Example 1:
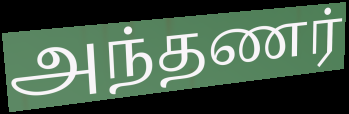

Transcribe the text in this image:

அந்தணர்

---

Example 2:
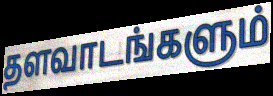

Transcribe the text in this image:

தளவாடங்களும்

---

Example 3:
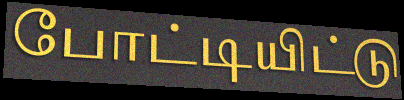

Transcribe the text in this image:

போட்டியிட்டு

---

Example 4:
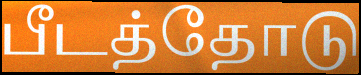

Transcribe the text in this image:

பீடத்தோடு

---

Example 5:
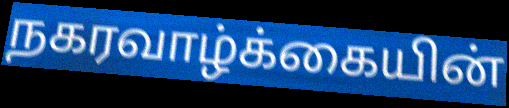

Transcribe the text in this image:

நகரவாழ்க்கையின்